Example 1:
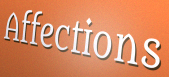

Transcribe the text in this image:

Affections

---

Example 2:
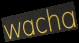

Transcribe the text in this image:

wacha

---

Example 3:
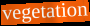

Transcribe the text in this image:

vegetation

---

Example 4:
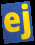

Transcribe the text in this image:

ej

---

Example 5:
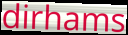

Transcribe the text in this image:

dirhams